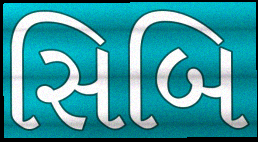
સિબિ